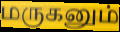
மருகனும்